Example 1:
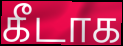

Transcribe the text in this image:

கீடாக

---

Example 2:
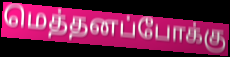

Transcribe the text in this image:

மெத்தனப்போக்கு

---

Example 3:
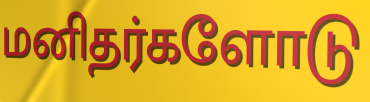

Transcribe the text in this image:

மனிதர்களோடு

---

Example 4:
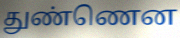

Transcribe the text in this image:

துண்ணென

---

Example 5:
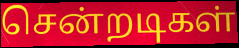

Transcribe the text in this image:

சென்றடிகள்